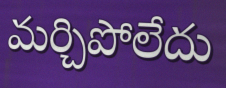
మర్చిపోలేదు